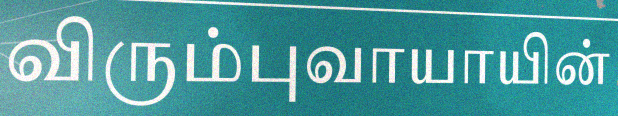
விரும்புவாயாயின்